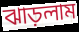
ঝাড়লাম